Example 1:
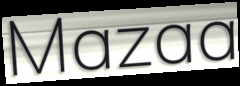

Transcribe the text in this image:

Mazaa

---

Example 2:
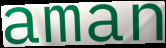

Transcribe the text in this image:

aman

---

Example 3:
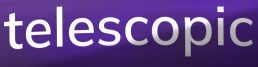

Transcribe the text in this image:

telescopic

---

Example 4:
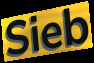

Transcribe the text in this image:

Sieb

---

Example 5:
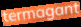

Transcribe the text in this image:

termagant